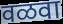
वळवा